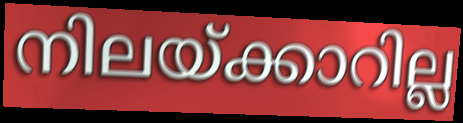
നിലയ്ക്കാറില്ല